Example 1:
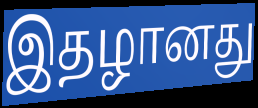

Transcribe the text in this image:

இதழானது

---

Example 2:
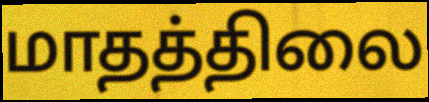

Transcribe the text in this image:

மாதத்திலை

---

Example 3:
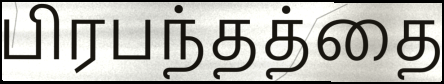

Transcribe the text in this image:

பிரபந்தத்தை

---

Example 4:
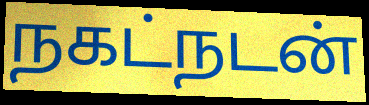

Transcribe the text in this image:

நகட்நடன்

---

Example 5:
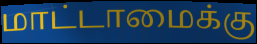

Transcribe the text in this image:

மாட்டாமைக்கு